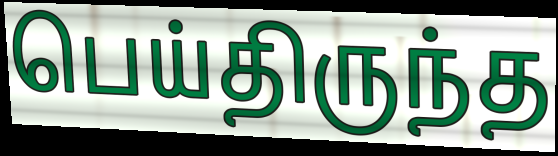
பெய்திருந்த